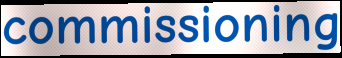
commissioning